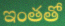
ఇంతతో